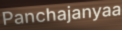
Panchajanyaa